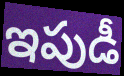
ఇపుడీ